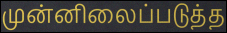
முன்னிலைப்படுத்த